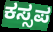
ಕಸ್ಸಪ